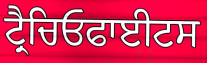
ਟ੍ਰੈਚਿਓਫਾਈਟਸ